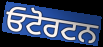
ਓਟੋਰਟਨ